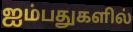
ஐம்பதுகளில்